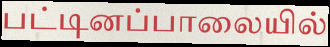
பட்டினப்பாலையில்